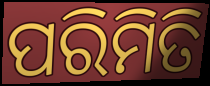
ପରିମିତି